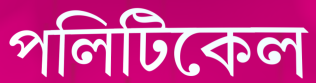
পলিটিকেল